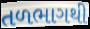
તળભાગથી